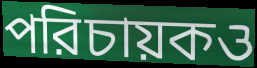
পরিচায়কও